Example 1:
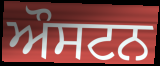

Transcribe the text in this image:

ਔਸਟਨ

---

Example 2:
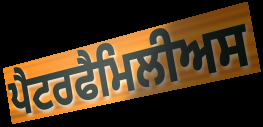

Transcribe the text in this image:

ਪੈਟਰਫੈਮਿਲੀਅਸ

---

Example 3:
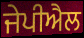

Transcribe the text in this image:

ਜੇਪੀਐਲ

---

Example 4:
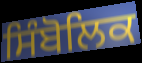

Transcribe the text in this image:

ਸਿੰਬੋਲਿਕ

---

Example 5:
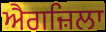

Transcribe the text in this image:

ਐਗਜ਼ਿਲਾ